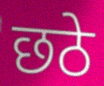
छठे